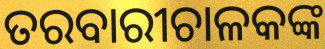
ତରବାରୀଚାଳକଙ୍କ